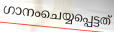
ഗാനംചെയ്യപ്പെട്ടത്